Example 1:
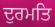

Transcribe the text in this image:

ਦੁਰਮਤਿ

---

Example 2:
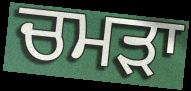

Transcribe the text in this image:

ਚਮੜਾ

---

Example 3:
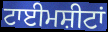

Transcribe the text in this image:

ਟਾਈਮਸ਼ੀਟਾਂ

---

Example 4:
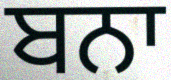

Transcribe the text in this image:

ਬਨਾ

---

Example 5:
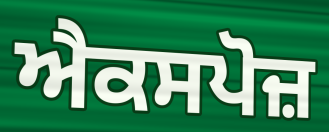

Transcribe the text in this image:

ਐਕਸਪੋਜ਼